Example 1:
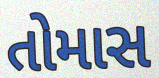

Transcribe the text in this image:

તોમાસ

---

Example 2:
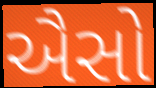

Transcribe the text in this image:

ઐસો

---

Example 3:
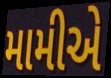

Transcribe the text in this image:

મામીએ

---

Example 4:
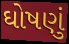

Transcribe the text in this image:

ઘોષણું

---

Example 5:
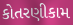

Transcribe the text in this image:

કોતરણીકામ